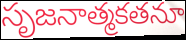
సృజనాత్మకతనూ